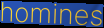
homines